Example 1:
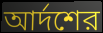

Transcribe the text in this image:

আর্দশের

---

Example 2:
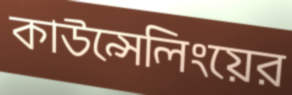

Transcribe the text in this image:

কাউন্সেলিংয়ের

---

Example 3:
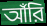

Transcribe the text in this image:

আঁরি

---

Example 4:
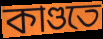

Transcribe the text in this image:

কাণ্ডতে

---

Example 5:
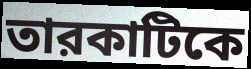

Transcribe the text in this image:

তারকাটিকে